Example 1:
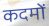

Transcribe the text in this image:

कदमों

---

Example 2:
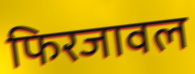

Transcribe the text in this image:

फिरजावल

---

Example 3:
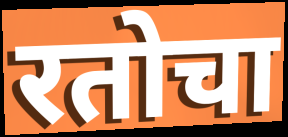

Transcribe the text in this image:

रतोचा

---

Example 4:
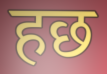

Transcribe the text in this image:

हछ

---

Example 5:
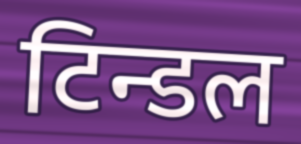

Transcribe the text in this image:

टिन्डल